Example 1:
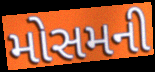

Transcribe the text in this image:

મોસમની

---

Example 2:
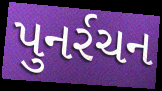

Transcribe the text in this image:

પુનર્રચન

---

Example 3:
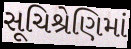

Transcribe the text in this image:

સૂચિશ્રેણિમાં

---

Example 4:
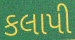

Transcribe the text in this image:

કલાપી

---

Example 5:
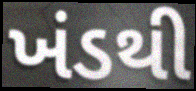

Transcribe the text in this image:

ખંડથી